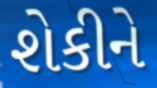
શેકીને